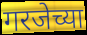
गरजेच्या